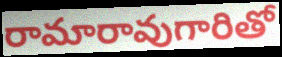
రామారావుగారితో